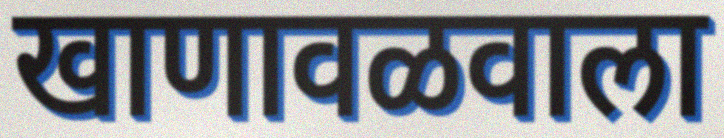
खाणावळवाला